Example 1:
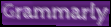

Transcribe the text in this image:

Grammarly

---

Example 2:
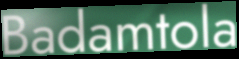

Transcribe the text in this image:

Badamtola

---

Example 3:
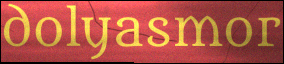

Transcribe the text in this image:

dolyasmor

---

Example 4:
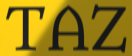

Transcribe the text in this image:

TAZ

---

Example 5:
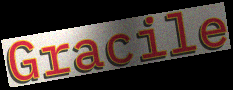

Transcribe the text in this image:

Gracile